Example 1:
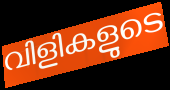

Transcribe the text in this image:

വിളികളുടെ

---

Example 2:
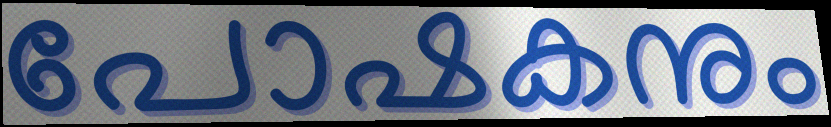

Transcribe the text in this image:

പോഷകനും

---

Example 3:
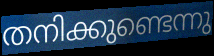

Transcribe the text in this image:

തനിക്കുണ്ടെന്നു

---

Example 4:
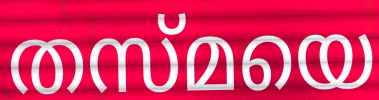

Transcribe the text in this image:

തസ്മയെ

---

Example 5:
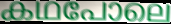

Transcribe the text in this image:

കഥപോലെ